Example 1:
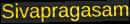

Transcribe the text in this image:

Sivapragasam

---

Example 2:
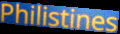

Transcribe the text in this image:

Philistines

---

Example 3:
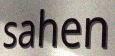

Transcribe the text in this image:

sahen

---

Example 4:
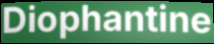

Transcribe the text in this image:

Diophantine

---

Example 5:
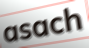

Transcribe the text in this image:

asach